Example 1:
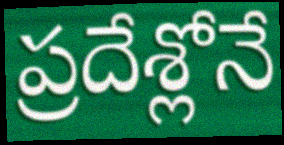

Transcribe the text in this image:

ప్రదేశ్లోనే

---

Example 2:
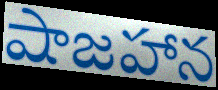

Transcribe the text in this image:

షాజహాన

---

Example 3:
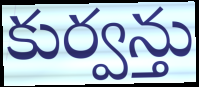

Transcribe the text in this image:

కుర్వన్తు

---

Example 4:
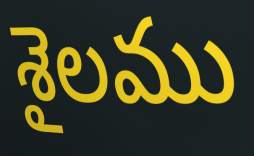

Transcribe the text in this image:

శైలము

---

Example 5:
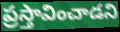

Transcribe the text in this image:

ప్రస్తావించాడని